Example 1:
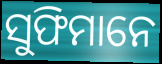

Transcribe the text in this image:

ସୁଫିମାନେ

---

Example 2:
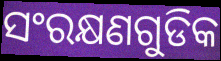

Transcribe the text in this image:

ସଂରକ୍ଷଣଗୁଡିକ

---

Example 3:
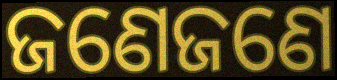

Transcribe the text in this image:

ଜଣେଜଣେ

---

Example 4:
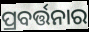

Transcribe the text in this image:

ପ୍ରବର୍ତ୍ତନାର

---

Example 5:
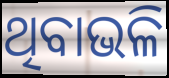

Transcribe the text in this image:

ଥିବାଭଳି